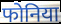
फोनिया